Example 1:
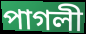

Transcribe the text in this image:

পাগলী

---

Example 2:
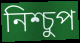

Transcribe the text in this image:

নিশ্চুপ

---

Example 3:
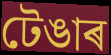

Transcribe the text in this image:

টেঙাৰ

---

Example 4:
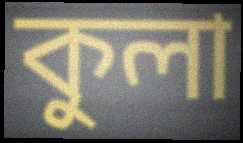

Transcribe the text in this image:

কুলা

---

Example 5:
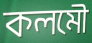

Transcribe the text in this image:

কলমৌ